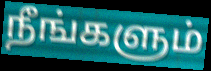
நீங்களும்